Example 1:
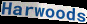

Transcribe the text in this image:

Harwoods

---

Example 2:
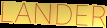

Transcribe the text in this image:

LANDER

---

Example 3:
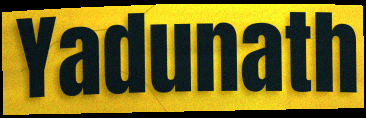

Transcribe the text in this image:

Yadunath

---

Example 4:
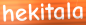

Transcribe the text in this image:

hekitala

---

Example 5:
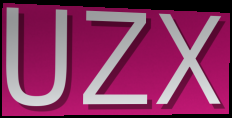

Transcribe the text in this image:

UZX